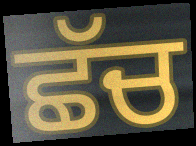
ਛੱਚ